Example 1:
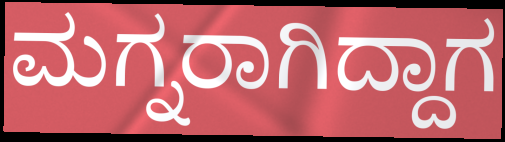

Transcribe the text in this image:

ಮಗ್ನರಾಗಿದ್ದಾಗ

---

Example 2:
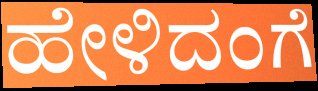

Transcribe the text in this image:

ಹೇಳಿದಂಗೆ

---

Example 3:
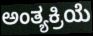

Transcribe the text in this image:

ಅಂತ್ಯಕ್ರಿಯೆ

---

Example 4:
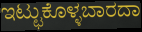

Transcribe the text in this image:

ಇಟ್ಟುಕೊಳ್ಳಬಾರದಾ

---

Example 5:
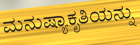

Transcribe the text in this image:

ಮನುಷ್ಯಾಕೃತಿಯನ್ನು